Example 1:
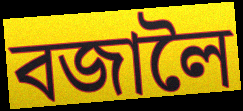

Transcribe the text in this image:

বজালৈ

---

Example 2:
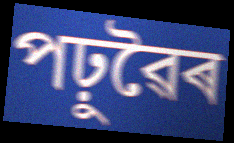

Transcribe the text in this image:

পঢ়ুৱৈৰ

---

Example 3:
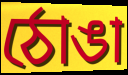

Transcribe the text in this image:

ঠোঙা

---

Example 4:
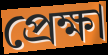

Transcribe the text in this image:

প্ৰেক্ষা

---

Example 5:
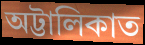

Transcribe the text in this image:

অট্টালিকাত